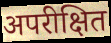
अपरीक्षित